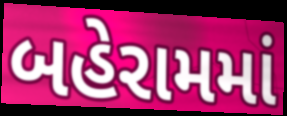
બહેરામમાં